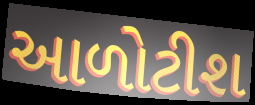
આળોટીશ